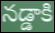
నడ్డాకి